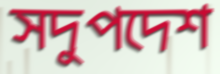
সদুপদেশ